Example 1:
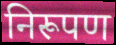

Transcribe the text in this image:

निरूपण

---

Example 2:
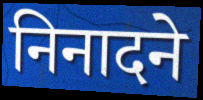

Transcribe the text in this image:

निनादने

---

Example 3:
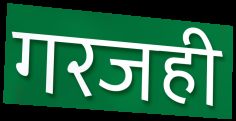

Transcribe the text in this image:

गरजही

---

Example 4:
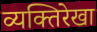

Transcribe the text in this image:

व्यक्तिरेखा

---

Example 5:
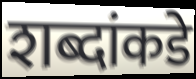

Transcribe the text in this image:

शब्दांकडे